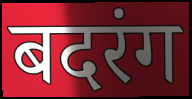
बदरंग